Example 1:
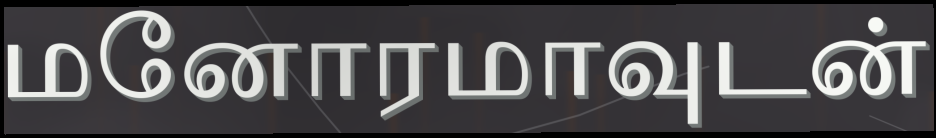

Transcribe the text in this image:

மனோரமாவுடன்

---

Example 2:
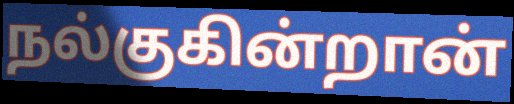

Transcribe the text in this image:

நல்குகின்றான்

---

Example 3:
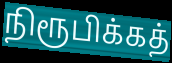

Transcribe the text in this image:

நிரூபிக்கத்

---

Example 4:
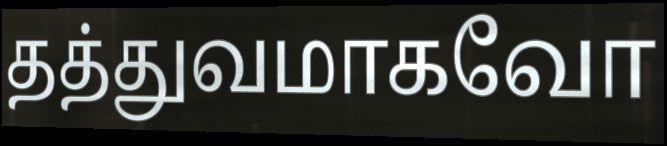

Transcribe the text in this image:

தத்துவமாகவோ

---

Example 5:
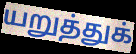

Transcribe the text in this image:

யறுத்துக்